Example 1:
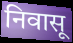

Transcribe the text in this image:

निवासू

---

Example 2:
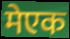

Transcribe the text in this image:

मेएक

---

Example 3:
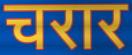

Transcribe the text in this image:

चरार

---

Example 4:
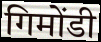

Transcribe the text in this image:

गिमोंडी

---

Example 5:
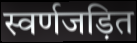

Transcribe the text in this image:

स्वर्णजड़ित